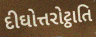
દીઘોત્તરોટ્ઠાતિ